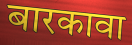
बारकावा